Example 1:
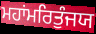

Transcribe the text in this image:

ਮਹਾਂਮਰਿਤੁੰਜਯ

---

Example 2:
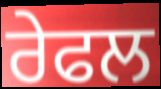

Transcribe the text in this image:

ਰੇਫਲ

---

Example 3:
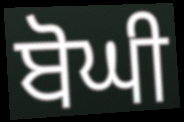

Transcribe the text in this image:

ਬੋਘੀ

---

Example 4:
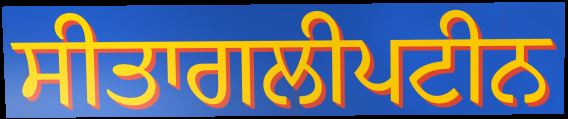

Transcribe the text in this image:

ਸੀਤਾਗਲੀਪਟੀਨ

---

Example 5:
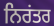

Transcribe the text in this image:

ਨਿਰਂਤਰ